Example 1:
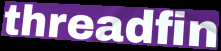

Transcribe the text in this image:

threadfin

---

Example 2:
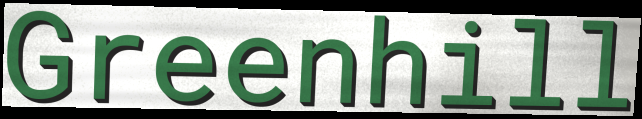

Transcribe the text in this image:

Greenhill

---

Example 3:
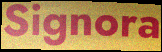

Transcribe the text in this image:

Signora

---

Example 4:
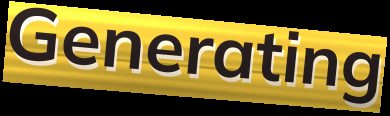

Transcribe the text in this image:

Generating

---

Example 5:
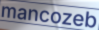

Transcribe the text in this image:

mancozeb